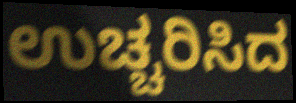
ಉಚ್ಚರಿಸಿದ